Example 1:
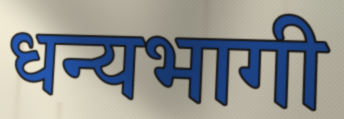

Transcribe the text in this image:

धन्यभागी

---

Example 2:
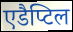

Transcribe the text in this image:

एडैप्टिल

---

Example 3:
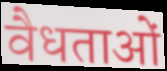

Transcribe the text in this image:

वैधताओं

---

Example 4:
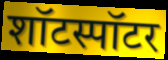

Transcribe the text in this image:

शॉटस्पॉटर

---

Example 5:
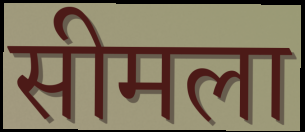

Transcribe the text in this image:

सीमला